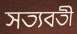
সত্যবতী